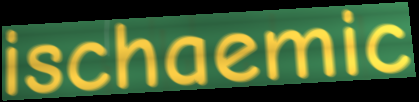
ischaemic